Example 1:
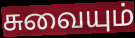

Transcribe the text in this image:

சுவையும்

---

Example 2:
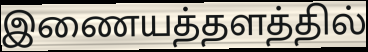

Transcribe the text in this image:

இணையத்தளத்தில்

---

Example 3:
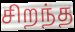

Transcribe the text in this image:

சிறந்த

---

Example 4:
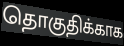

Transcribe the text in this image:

தொகுதிக்காக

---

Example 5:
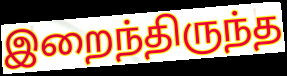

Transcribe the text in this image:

இறைந்திருந்த